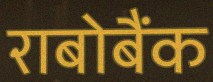
राबोबैंक